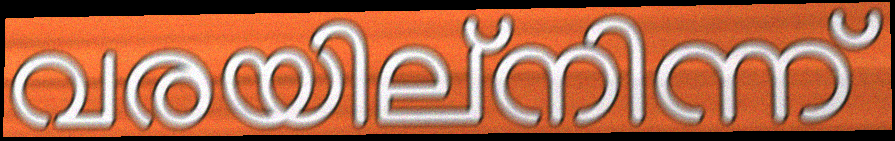
വരയില്നിന്ന്